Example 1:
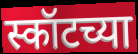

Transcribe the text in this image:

स्कॉटच्या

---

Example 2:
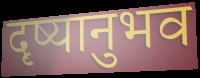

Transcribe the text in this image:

दृष्यानुभव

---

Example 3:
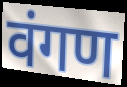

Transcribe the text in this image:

वंगण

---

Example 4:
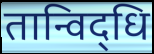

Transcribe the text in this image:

तान्विद्धि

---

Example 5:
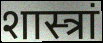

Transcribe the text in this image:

शास्त्रां